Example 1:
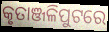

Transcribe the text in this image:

କୃତାଞ୍ଜଳିପୁଟରେ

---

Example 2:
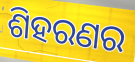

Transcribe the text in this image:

ଶିହରଣର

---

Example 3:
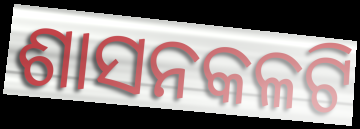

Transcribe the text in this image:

ଶାସନକଳଟି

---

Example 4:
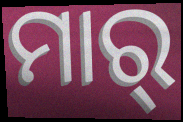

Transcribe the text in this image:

ମାର୍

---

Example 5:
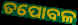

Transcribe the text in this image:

ତପୋବଳ